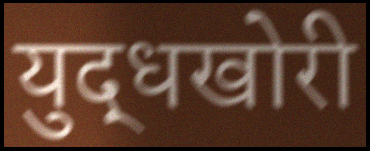
युद्धखोरी